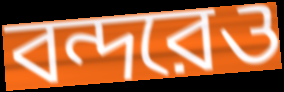
বন্দরেও